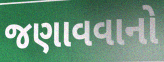
જણાવવાનો